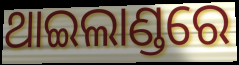
ଥାଇଲାଣ୍ଡରେ